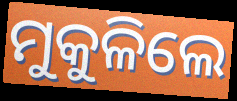
ମୁକୁଳିଲେ